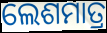
ଲେଶମାତ୍ର